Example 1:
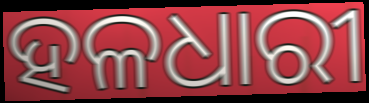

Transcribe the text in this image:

ହଳଧାରୀ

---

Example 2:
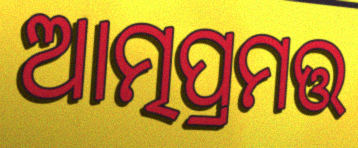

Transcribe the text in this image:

ଆତ୍ମପ୍ରମତ୍ତ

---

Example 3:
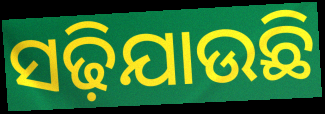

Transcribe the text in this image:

ସଢ଼ିଯାଉଛି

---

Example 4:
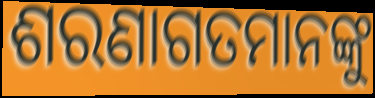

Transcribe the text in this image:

ଶରଣାଗତମାନଙ୍କୁ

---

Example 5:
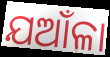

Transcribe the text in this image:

ଯଆଁଳା